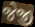
જેજી